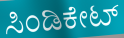
ಸಿಂಡಿಕೇಟ್